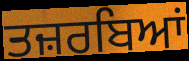
ਤਜ਼ਰਬਿਆਂ